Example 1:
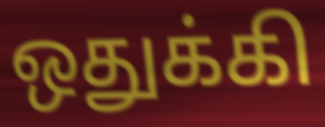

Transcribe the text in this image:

ஒதுக்கி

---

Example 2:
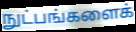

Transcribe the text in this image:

நுட்பங்களைக்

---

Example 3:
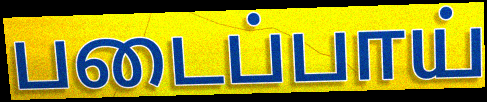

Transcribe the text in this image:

படைப்பாய்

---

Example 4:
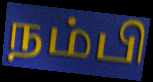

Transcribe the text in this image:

நம்பி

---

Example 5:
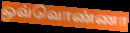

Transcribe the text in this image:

ஒவ்வொண்ணா